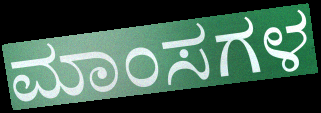
ಮಾಂಸಗಳ